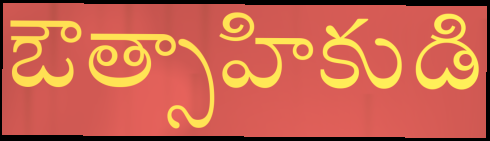
ఔత్సాహికుడి